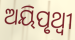
ଅୟିପୃଥ୍ୱୀ